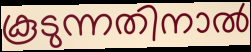
കൂടുന്നതിനാൽ